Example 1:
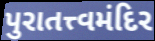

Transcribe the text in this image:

પુરાતત્ત્વમંદિર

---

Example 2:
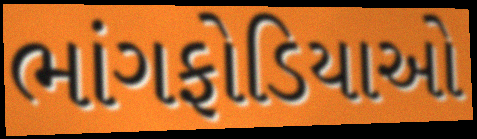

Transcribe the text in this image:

ભાંગફોડિયાઓ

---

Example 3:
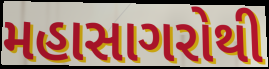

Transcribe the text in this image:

મહાસાગરોથી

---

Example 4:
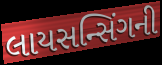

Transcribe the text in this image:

લાયસન્સિંગની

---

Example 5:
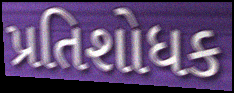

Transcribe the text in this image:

પ્રતિશોધક